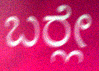
ಬರ್‍ಲೇ